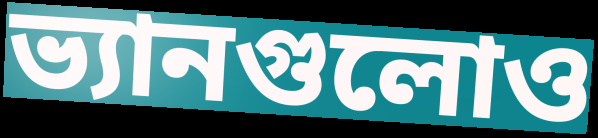
ভ্যানগুলোও